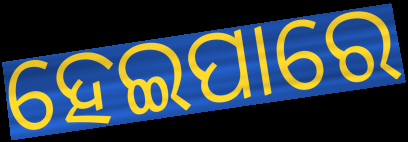
ହେଇପାରେ